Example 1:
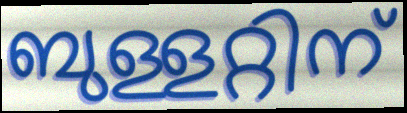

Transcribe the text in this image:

ബുള്ളറ്റിന്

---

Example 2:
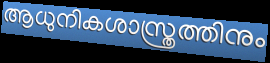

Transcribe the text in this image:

ആധുനികശാസ്ത്രത്തിനും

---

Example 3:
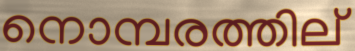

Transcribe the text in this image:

നൊമ്പരത്തില്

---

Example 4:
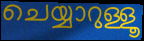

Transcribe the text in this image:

ചെയ്യാറുള്ളൂ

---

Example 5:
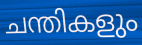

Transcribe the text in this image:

ചന്തികളും